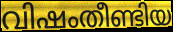
വിഷംതീണ്ടിയ